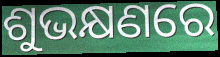
ଶୁଭକ୍ଷଣରେ